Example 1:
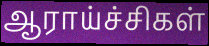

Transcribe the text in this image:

ஆராய்ச்சிகள்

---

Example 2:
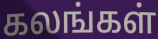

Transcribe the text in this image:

கலங்கள்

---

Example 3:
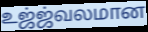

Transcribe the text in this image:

உஜ்ஜ்வலமான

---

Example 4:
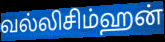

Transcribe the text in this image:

வல்லிசிம்ஹன்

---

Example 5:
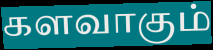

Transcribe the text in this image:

களவாகும்